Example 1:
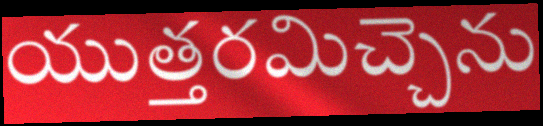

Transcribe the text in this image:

యుత్తరమిచ్చెను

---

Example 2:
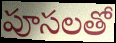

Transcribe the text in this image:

పూసలతో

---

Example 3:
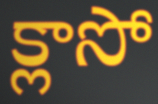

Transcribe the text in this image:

క్లాసో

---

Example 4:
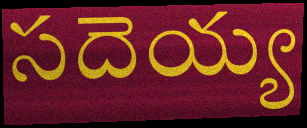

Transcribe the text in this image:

సదెయ్య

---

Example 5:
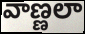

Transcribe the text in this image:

వాణ్ణలా